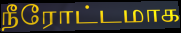
நீரோட்டமாக